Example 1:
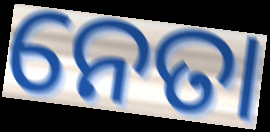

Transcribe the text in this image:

ନେତା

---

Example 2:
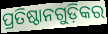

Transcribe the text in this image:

ପ୍ରତିଷ୍ଠାନଗୁଡ଼ିକର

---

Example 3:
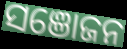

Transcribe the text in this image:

ସଞୋଜନ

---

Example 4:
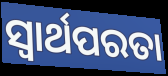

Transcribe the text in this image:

ସ୍ବାର୍ଥପରତା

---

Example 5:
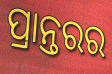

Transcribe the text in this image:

ପ୍ରାନ୍ତରର